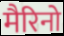
मैरिनो